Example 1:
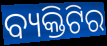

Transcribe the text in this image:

ବ୍ୟକ୍ତିଟିର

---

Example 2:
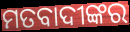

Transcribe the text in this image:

ମତବାଦୀଙ୍କର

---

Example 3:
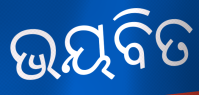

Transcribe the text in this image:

ଭୟବିତ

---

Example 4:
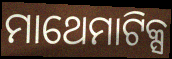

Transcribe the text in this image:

ମାଥେମାଟିକ୍ସ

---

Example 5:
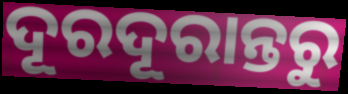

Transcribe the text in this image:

ଦୂରଦୂରାନ୍ତରୁ